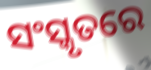
ସଂସ୍କୃତରେ